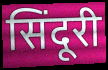
सिंदूरी